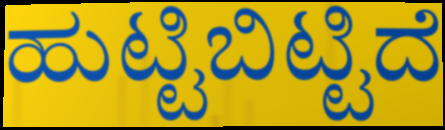
ಹುಟ್ಟಿಬಿಟ್ಟಿದೆ